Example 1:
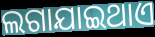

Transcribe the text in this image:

ଲଗାଯାଇଥାଏ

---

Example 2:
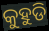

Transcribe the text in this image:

କୁହୁଡି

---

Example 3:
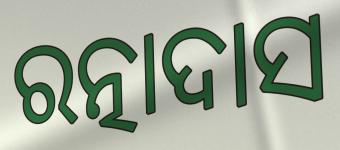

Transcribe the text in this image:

ରତ୍ନାଦାସ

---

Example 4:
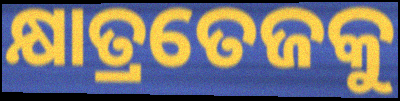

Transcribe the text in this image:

କ୍ଷାତ୍ରତେଜକୁ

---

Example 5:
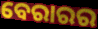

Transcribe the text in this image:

ବେରାରର